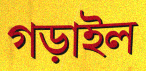
গড়াইল